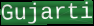
Gujarti